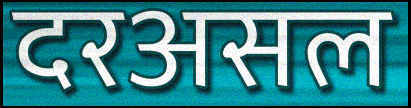
दरअसल